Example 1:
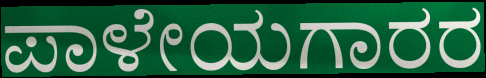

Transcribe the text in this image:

ಪಾಳೇಯಗಾರರ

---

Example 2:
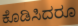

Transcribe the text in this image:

ಕೊಡಿಸಿದರೂ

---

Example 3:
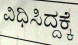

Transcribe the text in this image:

ವಿಧಿಸಿದ್ದಕ್ಕೆ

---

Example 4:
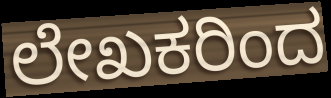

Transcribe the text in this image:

ಲೇಖಕರಿಂದ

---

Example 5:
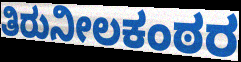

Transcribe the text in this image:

ತಿರುನೀಲಕಂಠರ